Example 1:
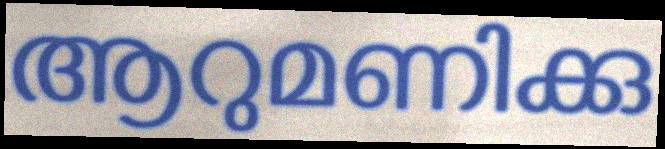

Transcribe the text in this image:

ആറുമണിക്കു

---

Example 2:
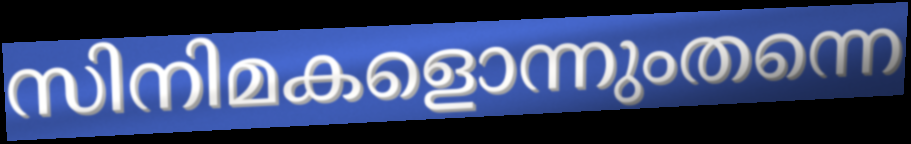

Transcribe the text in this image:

സിനിമകളൊന്നുംതന്നെ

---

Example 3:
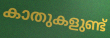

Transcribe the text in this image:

കാതുകളുണ്ട്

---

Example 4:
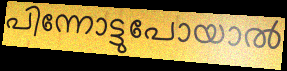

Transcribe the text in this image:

പിന്നോട്ടുപോയാൽ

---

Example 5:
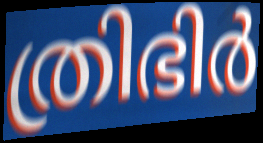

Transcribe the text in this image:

ത്രിഭിർ